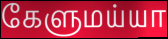
கேளுமய்யா